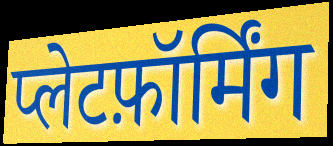
प्लेटफ़ॉर्मिंग